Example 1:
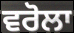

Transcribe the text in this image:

ਵਰੋਲਾ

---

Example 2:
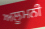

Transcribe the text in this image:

ਅਲੂਮਨੀ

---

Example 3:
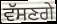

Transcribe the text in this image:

ਵੱਸਣਗੇ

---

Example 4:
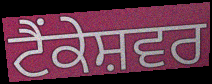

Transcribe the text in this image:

ਟੈਂਕੇਸ਼ਵਰ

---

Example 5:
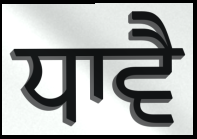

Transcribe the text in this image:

ਧਾਵੈ